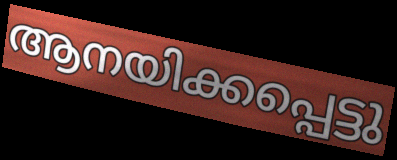
ആനയിക്കപ്പെട്ടു